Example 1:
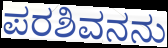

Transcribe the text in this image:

ಪರಶಿವನನು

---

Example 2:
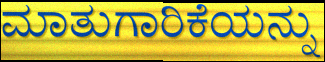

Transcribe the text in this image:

ಮಾತುಗಾರಿಕೆಯನ್ನು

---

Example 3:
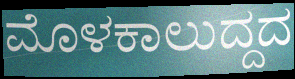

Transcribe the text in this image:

ಮೊಳಕಾಲುದ್ದದ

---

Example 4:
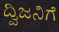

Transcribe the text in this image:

ದ್ವಿಜನಿಗೆ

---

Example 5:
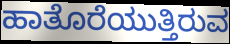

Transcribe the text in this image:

ಹಾತೊರೆಯುತ್ತಿರುವ